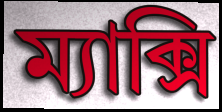
ম্যাক্সি